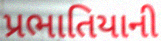
પ્રભાતિયાની